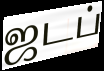
ஜடப்